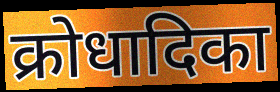
क्रोधादिका